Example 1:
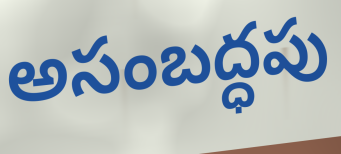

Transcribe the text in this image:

అసంబద్ధపు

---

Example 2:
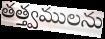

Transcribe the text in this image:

తత్త్వములను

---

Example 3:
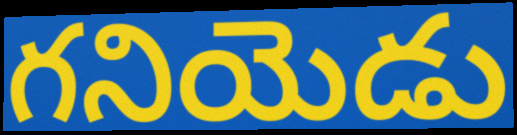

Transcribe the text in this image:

గనియెడు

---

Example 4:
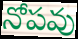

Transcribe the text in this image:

నోపవు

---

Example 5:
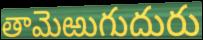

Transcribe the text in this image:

తామెఱుగుదురు